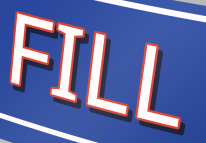
FILL